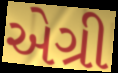
એગ્રી